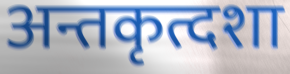
अन्तकृत्दशा